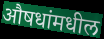
औषधांमधील